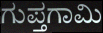
ಗುಪ್ತಗಾಮಿ